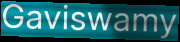
Gaviswamy